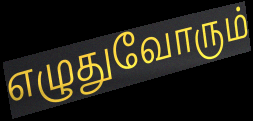
எழுதுவோரும்